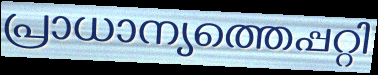
പ്രാധാന്യത്തെപ്പറ്റി